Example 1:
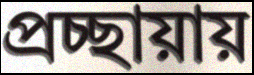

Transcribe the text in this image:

প্রচ্ছায়ায়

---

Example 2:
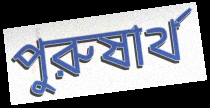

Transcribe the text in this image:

পুরুষার্থ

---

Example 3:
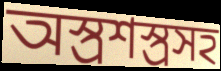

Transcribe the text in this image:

অস্ত্রশস্ত্রসহ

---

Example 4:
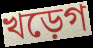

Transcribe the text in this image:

খড়েগ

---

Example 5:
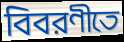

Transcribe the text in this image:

বিবরণীতে